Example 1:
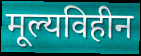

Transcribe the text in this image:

मूल्यविहीन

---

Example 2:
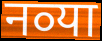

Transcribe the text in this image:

नव्‍या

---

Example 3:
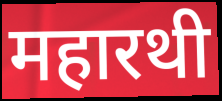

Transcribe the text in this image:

महारथी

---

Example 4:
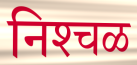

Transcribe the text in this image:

निश्‍चळ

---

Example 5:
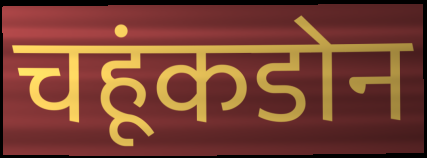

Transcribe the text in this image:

चहूंकडोन